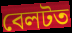
বেলটত